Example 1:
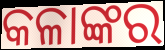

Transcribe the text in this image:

କଳାଙ୍କର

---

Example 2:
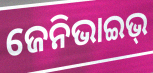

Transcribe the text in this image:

ଜେନିଭାଇଭ୍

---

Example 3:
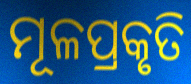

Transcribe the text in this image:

ମୂଳପ୍ରକୃତି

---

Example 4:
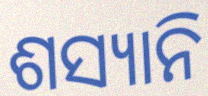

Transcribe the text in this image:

ଶସ୍ୟାନି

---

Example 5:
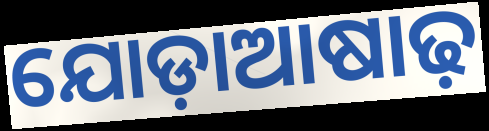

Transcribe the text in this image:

ଯୋଡ଼ାଆଷାଢ଼